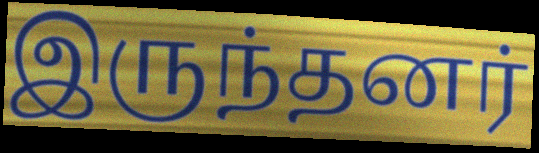
இருந்தனர்